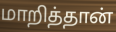
மாறித்தான்